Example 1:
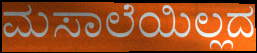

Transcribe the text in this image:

ಮಸಾಲೆಯಿಲ್ಲದ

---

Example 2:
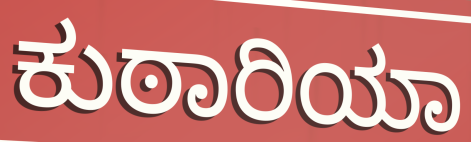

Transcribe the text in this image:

ಕುಠಾರಿಯಾ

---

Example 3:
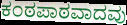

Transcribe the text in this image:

ಕಂಠಪಾಠವಾದವು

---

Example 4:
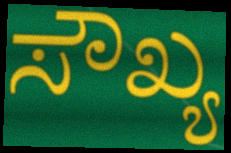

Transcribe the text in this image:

ಸೌಖ್ಯ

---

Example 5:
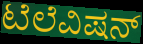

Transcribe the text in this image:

ಟೆಲೆವಿಷನ್